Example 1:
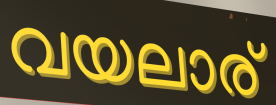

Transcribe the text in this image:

വയലാര്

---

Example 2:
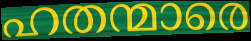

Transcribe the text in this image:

ഹതന്മാരെ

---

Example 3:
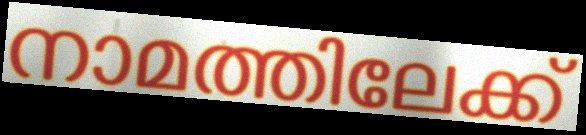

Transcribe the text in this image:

നാമത്തിലേക്ക്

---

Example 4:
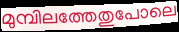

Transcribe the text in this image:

മുമ്പിലത്തേതുപോലെ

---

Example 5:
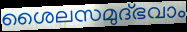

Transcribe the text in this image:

ശൈലസമുദ്ഭവാം